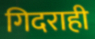
गिदराही